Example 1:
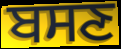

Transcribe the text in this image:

ਬਸਣ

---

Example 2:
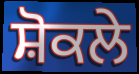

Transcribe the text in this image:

ਸ਼ੋਕਲੇ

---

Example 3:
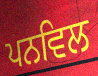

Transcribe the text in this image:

ਪਨਵਿਲ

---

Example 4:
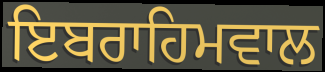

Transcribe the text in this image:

ਇਬਰਾਹਿਮਵਾਲ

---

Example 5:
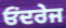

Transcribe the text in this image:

ਓਂਦਰੇਜ